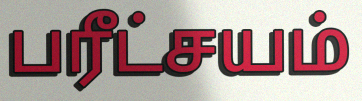
பரீட்சயம்